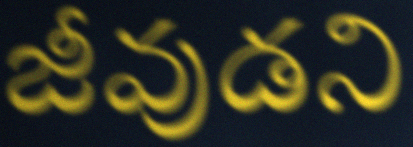
జీవుడని